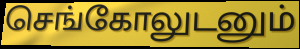
செங்கோலுடனும்